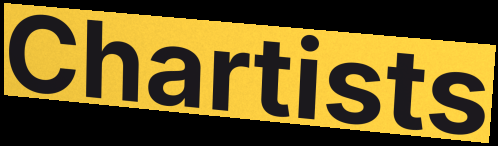
Chartists